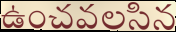
ఉంచవలసిన